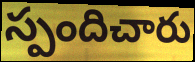
స్పందిచారు